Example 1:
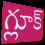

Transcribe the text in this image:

గ్లూక్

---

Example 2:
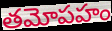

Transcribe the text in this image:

తమోపహం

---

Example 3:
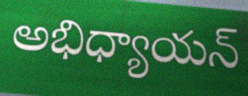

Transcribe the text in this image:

అభిధ్యాయన్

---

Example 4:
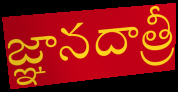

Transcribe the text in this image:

జ్ఞానదాత్రీ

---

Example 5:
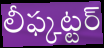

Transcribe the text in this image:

లీఫ్కట్టర్